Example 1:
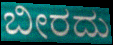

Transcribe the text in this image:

ಬೀರದು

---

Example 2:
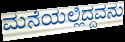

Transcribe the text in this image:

ಮನೆಯಲ್ಲಿದ್ದವನು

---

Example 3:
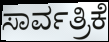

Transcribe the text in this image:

ಸಾರ್ವತ್ರಿಕೆ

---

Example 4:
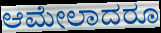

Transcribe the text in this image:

ಆಮೇಲಾದರೂ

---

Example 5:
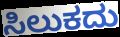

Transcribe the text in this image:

ಸಿಲುಕದು